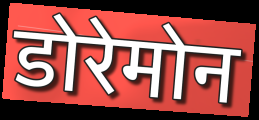
डोरेमोन